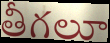
తీగలూ